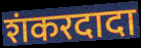
शंकरदादा